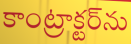
కాంట్రాక్టర్‌ను